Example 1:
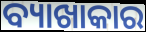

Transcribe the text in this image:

ବ୍ୟାଖାକାର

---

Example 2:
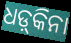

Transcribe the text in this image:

ଧଡ଼୍‍କିନା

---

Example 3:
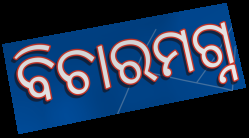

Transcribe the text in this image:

ବିଚାରମଗ୍ନ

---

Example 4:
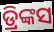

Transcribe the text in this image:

ଡ୍ରିଙ୍କସ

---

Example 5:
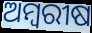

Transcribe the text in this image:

ଅମ୍ବରୀଷ